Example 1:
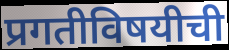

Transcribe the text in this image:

प्रगतीविषयीची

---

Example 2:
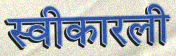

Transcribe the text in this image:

स्वीकारली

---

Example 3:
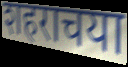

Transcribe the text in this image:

शहराचया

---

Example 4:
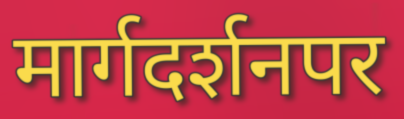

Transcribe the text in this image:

मार्गदर्शनपर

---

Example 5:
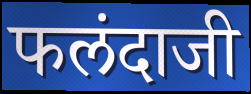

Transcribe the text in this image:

फलंदाजी